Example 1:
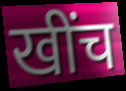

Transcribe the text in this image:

खींच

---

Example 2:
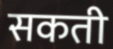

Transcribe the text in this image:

सकती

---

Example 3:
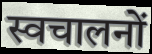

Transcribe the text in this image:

स्वचालनों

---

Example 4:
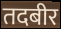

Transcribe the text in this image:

तदबीर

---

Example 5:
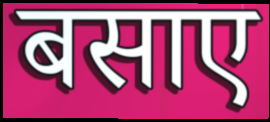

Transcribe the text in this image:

बसाए